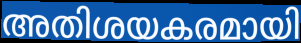
അതിശയകരമായി